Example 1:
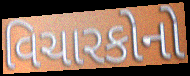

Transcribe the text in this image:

વિચારકોનો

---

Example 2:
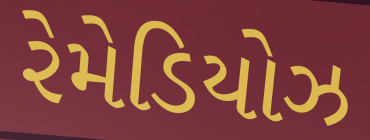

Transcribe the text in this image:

રેમેડિયોઝ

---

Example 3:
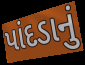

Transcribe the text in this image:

પાંદડાનું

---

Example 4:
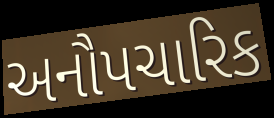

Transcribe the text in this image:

અનૌપચારિક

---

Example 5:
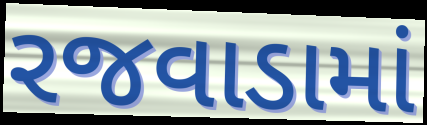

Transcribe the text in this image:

રજવાડામાં